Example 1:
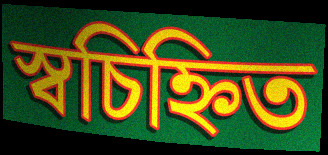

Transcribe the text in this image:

স্বচিহ্নিত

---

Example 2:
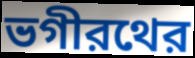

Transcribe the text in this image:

ভগীরথের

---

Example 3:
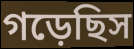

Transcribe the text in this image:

গড়েছিস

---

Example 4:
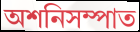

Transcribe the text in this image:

অশনিসম্পাত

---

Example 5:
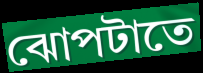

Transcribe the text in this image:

ঝোপটাতে